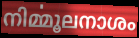
നിൎമ്മൂലനാശം